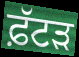
ਫ਼ੱਟੜ